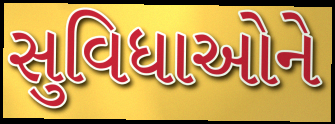
સુવિધાઓને